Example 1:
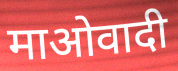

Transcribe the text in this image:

माओवादी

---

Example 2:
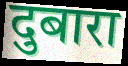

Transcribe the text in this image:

दुबारा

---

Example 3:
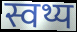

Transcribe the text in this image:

स्वथ्य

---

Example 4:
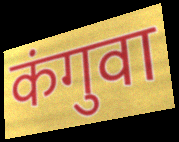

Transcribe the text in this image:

कंगुवा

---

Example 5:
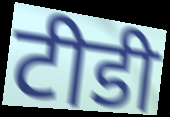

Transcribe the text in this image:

टीडी